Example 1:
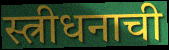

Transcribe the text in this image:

स्त्रीधनाची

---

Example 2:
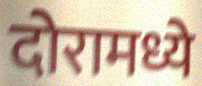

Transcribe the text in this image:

दोरामध्ये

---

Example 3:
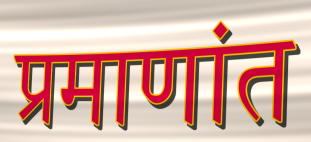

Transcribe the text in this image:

प्रमाणांत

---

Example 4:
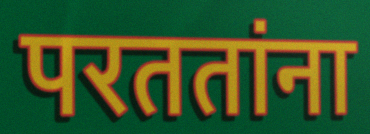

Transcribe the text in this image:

परततांना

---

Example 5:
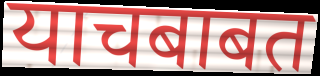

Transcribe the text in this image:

याचबाबत